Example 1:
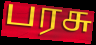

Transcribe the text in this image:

பரசு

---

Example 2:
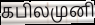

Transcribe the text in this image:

கபிலமுனி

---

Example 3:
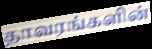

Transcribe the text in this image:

தாவரங்களின்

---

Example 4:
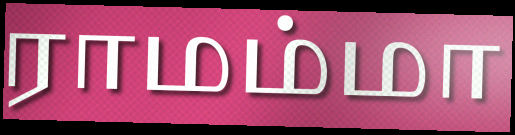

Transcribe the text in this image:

ராமம்மா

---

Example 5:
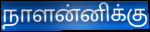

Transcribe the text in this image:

நாளன்னிக்கு